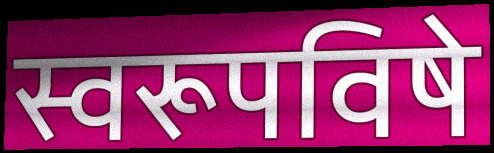
स्वरूपविषे